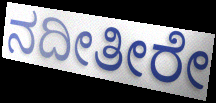
ನದೀತೀರೇ